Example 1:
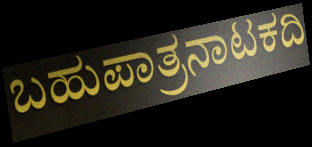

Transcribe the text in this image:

ಬಹುಪಾತ್ರನಾಟಕದಿ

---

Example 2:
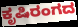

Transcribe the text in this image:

ಕೃಷಿರಂಗದ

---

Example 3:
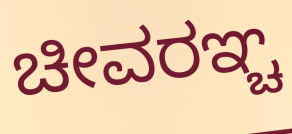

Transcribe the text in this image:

ಚೀವರಞ್ಚ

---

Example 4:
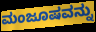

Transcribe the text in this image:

ಮಂಜೂಷವನ್ನು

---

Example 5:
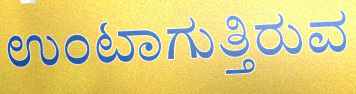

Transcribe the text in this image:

ಉಂಟಾಗುತ್ತಿರುವ